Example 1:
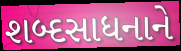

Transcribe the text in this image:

શબ્દસાધનાને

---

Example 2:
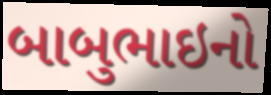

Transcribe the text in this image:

બાબુભાઇનો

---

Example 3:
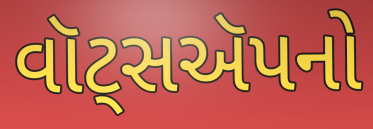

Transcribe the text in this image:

વૉટ્સઍપનો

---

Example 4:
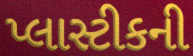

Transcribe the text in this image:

પ્લાસ્ટીકની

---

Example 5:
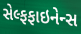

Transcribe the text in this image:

સેલ્ફફાઇનેન્સ